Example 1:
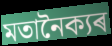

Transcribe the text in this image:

মতানৈক্যৰ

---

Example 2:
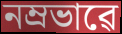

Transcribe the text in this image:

নম্ৰভাৱে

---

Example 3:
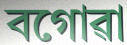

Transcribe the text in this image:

বগোৱা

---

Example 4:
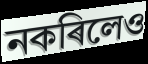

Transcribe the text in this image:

নকৰিলেও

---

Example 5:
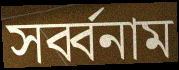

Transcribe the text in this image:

সৰ্ব্বনাম